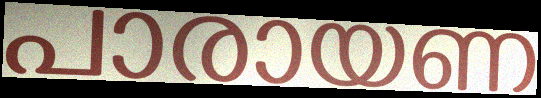
പാരായണ